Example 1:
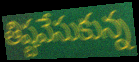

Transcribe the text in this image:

తిష్టవేసుకున్న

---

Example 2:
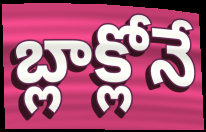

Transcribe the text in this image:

బ్లాక్లోనే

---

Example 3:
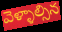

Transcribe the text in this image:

వెళ్ళాల్సిన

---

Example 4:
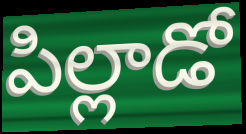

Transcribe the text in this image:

పిల్లాడో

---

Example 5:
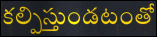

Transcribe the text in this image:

కల్పిస్తుండటంతో